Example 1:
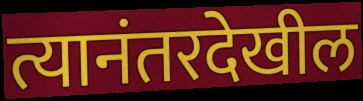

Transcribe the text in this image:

त्यानंतरदेखील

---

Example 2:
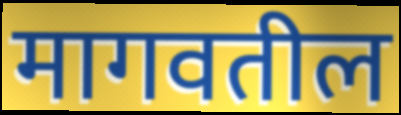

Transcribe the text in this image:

मागवतील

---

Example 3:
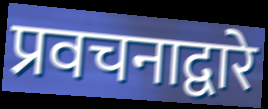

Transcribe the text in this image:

प्रवचनाद्वारे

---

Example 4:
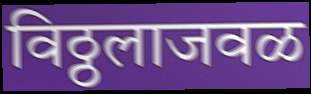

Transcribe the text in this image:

विठ्ठलाजवळ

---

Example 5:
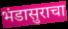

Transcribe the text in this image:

भंडासुराचा